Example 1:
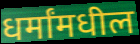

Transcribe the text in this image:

धर्मांमधील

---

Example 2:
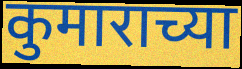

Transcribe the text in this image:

कुमाराच्या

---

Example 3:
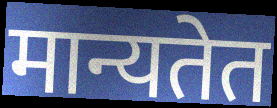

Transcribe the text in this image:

मान्यतेत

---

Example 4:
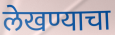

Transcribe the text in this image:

लेखण्याचा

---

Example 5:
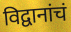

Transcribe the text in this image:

विद्वानांचं